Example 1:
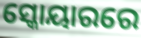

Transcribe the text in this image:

ସ୍କୋୟାରରେ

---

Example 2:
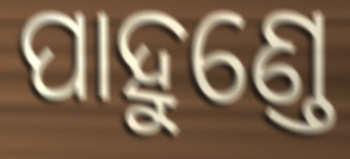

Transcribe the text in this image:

ପାହୁଣ୍ଡେ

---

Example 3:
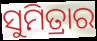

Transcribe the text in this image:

ସୁମିତ୍ରାର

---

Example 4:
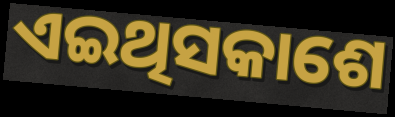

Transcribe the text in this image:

ଏଇଥିସକାଶେ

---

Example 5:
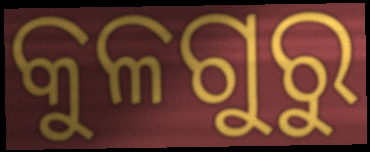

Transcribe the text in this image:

କୁଳଗୁରୁ